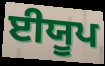
ਈਯੂਪ